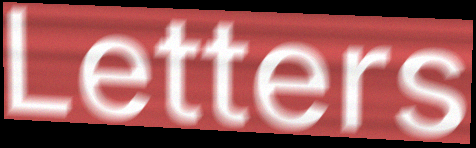
Letters